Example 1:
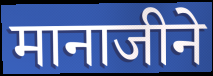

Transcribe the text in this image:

मानाजीने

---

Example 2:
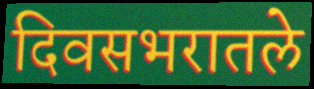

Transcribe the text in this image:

दिवसभरातले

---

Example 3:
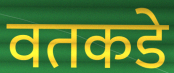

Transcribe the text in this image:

वतकडे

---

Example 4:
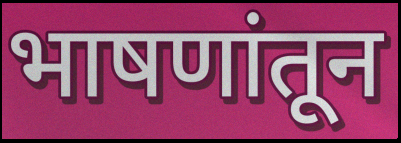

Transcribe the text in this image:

भाषणांतून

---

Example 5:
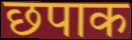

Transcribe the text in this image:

छपाक